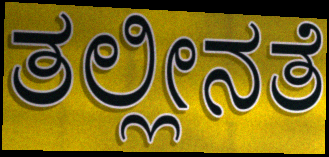
ತಲ್ಲೀನತೆ